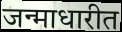
जन्माधारीत